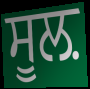
ਸੂਲ਼